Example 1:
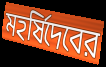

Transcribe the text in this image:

মহর্ষিদেবের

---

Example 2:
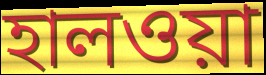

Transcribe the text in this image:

হালওয়া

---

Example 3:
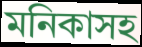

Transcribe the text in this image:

মনিকাসহ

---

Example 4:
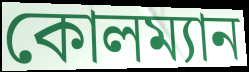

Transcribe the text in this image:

কোলম্যান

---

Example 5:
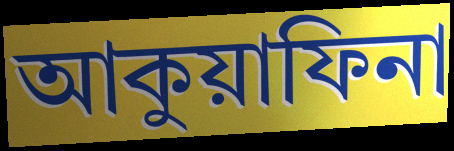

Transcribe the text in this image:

আকুয়াফিনা